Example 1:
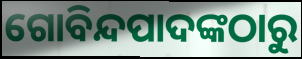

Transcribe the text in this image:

ଗୋବିନ୍ଦପାଦଙ୍କଠାରୁ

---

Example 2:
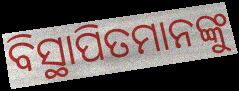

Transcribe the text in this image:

ବିସ୍ଥାପିତମାନଙ୍କୁ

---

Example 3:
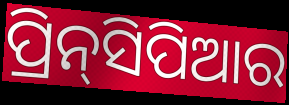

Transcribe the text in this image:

ପ୍ରିନ୍‌ସିପିଆର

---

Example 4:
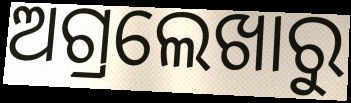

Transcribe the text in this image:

ଅଗ୍ରଲେଖାରୁ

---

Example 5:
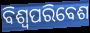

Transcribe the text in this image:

ବିଶ୍ୱପରିବେଶ